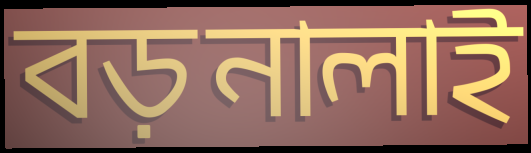
বড়নালাই